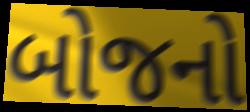
બોજનો